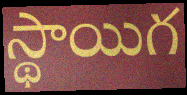
స్థాయిగ